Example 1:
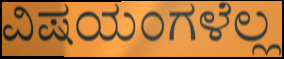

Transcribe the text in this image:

ವಿಷಯಂಗಳೆಲ್ಲ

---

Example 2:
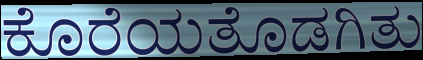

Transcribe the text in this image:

ಕೊರೆಯತೊಡಗಿತು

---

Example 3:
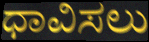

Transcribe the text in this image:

ಧಾವಿಸಲು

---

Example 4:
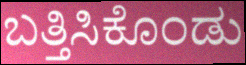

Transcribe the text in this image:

ಬತ್ತಿಸಿಕೊಂಡು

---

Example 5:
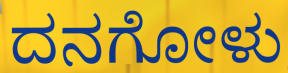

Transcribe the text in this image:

ದನಗೋಳು